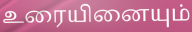
உரையினையும்